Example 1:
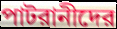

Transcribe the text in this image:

পাটরানীদের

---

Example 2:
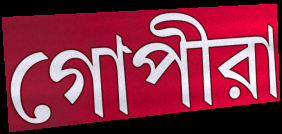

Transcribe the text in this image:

গোপীরা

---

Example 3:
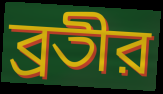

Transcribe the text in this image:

ব্রতীর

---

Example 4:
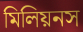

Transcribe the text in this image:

মিলিয়নস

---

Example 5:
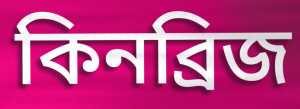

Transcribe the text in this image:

কিনব্রিজ